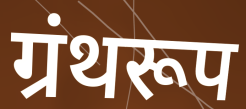
ग्रंथरूप